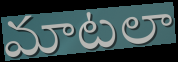
మాటలా